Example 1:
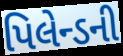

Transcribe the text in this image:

પિલેન્ડની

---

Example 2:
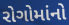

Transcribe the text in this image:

રોગોમાંનો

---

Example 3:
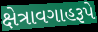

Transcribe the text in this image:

ક્ષેત્રાવગાહરૂપે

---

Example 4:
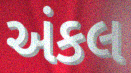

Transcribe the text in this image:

અંકલ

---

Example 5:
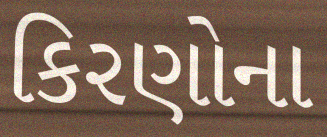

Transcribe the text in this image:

કિરણોના